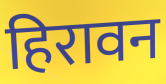
हिरावन